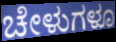
ಚೇಳುಗಳೂ